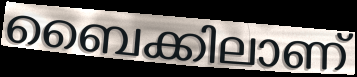
ബൈക്കിലാണ്